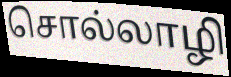
சொல்லாழி